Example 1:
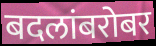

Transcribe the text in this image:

बदलांबरोबर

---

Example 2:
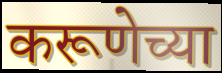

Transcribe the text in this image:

करूणेच्या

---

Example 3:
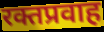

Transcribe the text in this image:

रक्तप्रवाह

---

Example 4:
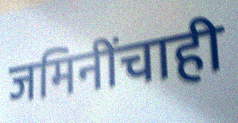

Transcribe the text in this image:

जमिनींचाही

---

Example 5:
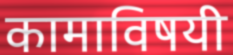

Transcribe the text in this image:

कामाविषयी